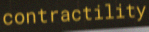
contractility